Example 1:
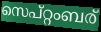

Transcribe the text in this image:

സെപ്റ്റംബര്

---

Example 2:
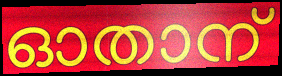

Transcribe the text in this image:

ഓതാന്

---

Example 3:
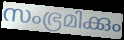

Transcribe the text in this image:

സംഭ്രമിക്കും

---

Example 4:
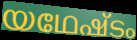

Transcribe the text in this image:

യഥേഷ്‌ടം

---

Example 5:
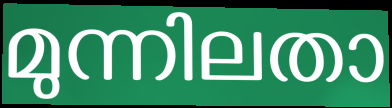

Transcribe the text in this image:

മുന്നിലതാ